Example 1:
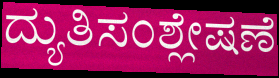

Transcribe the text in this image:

ದ್ಯುತಿಸಂಶ್ಲೇಷಣೆ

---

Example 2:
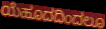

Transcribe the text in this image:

ಯೆಹೂದದಿಂದಲೂ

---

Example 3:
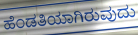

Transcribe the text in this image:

ಹೆಂಡತಿಯಾಗಿರುವುದು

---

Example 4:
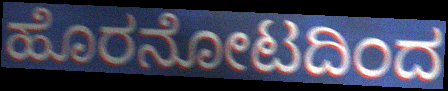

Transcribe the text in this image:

ಹೊರನೋಟದಿಂದ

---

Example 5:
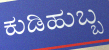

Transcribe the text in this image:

ಕುಡಿಹುಬ್ಬ